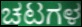
ಚಟಗಳ